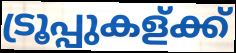
ട്രൂപ്പുകള്ക്ക്